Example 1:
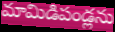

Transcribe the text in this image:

మామిడిపండ్లను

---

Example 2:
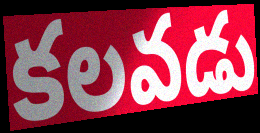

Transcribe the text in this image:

కలవడు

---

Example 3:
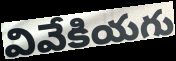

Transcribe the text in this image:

వివేకియగు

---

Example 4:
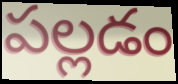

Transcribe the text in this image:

పల్లడం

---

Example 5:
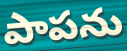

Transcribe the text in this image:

పాపను